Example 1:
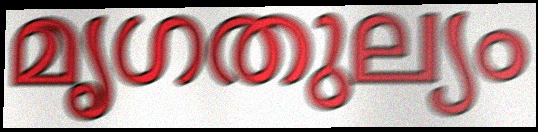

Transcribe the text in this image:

മൃഗതുല്യം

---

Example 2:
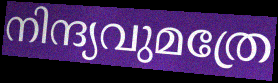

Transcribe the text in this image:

നിന്ദ്യവുമത്രേ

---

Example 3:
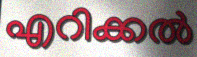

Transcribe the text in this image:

എറിക്കൽ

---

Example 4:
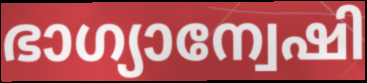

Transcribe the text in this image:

ഭാഗ്യാന്വേഷി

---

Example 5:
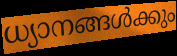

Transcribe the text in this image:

ധ്യാനങ്ങൾക്കും